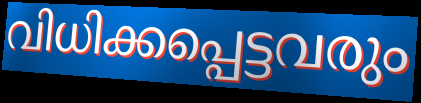
വിധിക്കപ്പെട്ടവരും